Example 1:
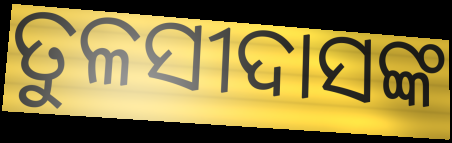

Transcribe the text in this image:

ତୁଳସୀଦାସଙ୍କ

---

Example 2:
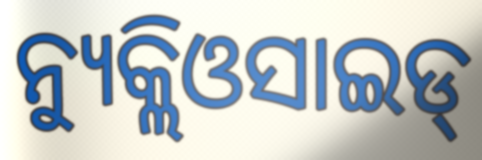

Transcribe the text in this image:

ନ୍ୟୁକ୍ଲିଓସାଇଡ୍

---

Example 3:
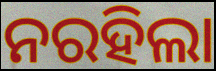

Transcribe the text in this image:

ନରହିଲା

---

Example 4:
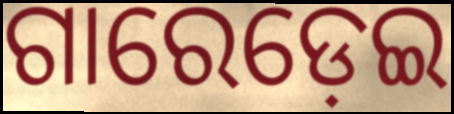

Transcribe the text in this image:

ଗାରେଡ଼େଇ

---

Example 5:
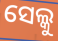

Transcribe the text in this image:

ସେଲ୍କୁ